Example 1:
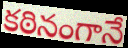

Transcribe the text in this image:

కఠినంగానే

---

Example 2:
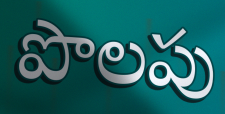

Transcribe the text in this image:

పొలపు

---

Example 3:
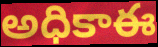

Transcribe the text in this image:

అధికాఈ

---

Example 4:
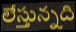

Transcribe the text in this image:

లేస్తున్నది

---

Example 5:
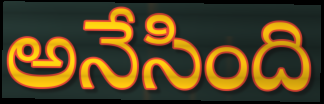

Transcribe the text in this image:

అనేసింది